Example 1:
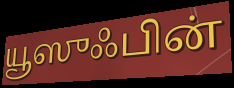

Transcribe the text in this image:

யூஸுஃபின்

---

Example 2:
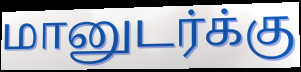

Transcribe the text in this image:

மானுடர்க்கு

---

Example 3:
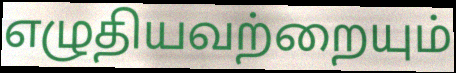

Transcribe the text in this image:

எழுதியவற்றையும்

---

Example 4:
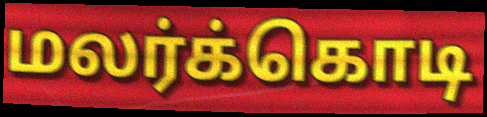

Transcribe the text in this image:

மலர்க்கொடி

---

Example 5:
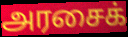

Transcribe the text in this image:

அரசைக்